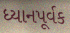
ધ્યાનપૂર્વક